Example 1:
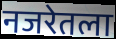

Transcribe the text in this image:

नजरेतला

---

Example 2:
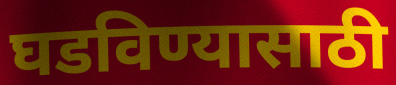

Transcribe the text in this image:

घडविण्यासाठी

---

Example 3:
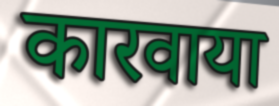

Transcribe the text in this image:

कारवाया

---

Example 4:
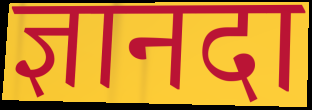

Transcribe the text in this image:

ज्ञानदा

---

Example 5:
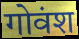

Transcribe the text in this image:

गोवंश